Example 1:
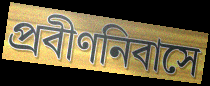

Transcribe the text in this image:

প্রবীণনিবাসে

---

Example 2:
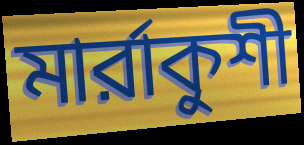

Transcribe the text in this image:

মার্রাকুশী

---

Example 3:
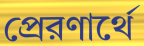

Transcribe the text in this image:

প্রেরণার্থে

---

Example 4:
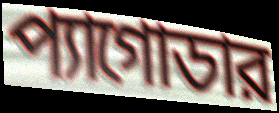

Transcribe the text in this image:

প্যাগোডার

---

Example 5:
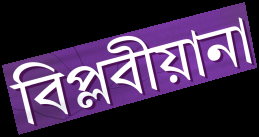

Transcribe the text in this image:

বিপ্লবীয়ানা